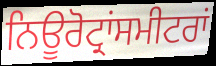
ਨਿਊਰੋਟ੍ਰਾਂਸਮੀਟਰਾਂ